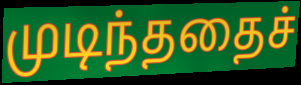
முடிந்ததைச்